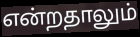
என்றதாலும்